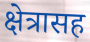
क्षेत्रासह